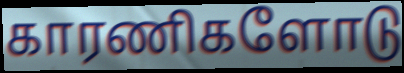
காரணிகளோடு